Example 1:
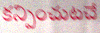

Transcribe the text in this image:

కన్పించుటచే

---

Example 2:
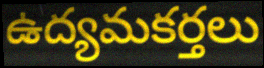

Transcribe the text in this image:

ఉద్యమకర్తలు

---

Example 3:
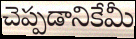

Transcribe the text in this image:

చెప్పడానికేమీ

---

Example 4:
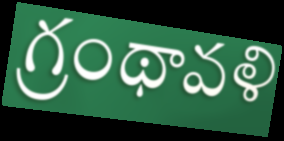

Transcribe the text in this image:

గ్రంథావళి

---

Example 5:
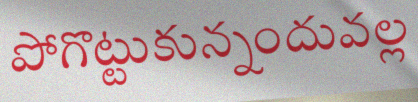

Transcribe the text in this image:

పోగొట్టుకున్నందువల్ల